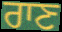
ਰਾਣ